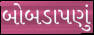
બોબડાપણું